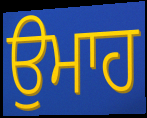
ਉਮਾਹ